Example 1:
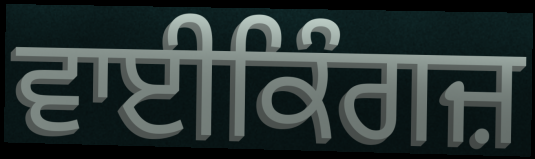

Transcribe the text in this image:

ਵਾਈਕਿੰਗਜ਼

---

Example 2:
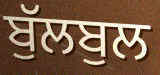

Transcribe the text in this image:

ਬੁੱਲਬੁਲ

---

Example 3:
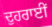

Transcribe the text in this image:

ਦੁਹਰਾਈਂ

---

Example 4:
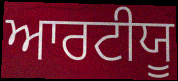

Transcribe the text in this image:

ਆਰਟੀਯੂ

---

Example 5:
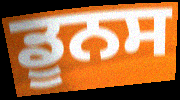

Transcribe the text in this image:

ਡੂਨਸ